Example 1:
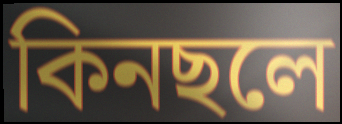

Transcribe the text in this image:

কিনছলে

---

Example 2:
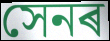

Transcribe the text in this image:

সেনৰ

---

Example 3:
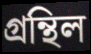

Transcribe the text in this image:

গ্ৰন্থিল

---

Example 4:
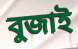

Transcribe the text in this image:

বুজাই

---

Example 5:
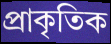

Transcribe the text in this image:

প্ৰাকৃতিক